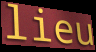
lieu